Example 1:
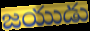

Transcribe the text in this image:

జయుడు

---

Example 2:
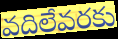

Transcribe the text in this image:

వదిలేవరకు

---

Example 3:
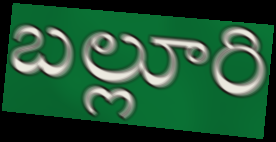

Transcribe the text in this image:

బల్లూరి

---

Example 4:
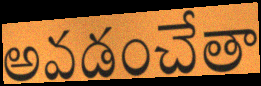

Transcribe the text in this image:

అవడంచేతా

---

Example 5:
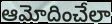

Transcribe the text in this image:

ఆమోదించేలా